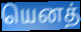
யெனத்